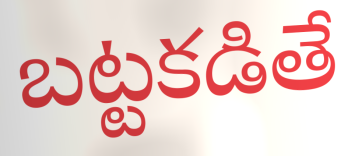
బట్టకడితే